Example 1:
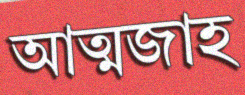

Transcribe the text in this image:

আত্মজাহ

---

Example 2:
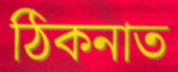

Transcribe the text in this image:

ঠিকনাত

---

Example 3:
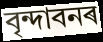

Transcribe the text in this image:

বৃন্দাবনৰ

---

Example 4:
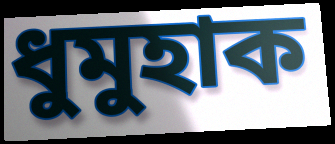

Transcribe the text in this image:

ধুমুহাক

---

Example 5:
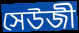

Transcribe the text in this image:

সেউজী